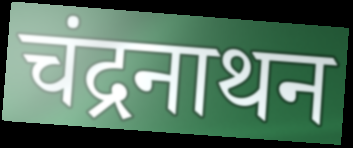
चंद्रनाथन